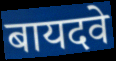
बायदवे